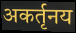
अकर्तृनय